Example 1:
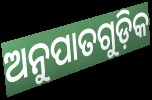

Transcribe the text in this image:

ଅନୁପାତଗୁଡ଼ିକ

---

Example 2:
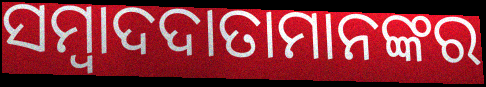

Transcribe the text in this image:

ସମ୍ବାଦଦାତାମାନଙ୍କର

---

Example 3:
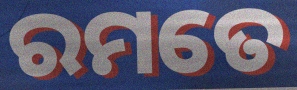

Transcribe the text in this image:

ରମତେ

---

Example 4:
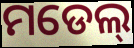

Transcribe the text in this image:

ମଡେଲ୍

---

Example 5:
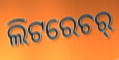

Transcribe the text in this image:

ଲିଟରେଚର୍